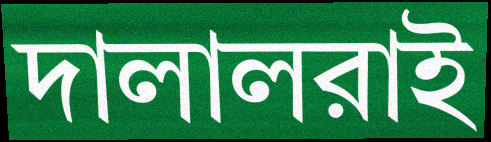
দালালরাই